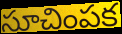
సూచింపక